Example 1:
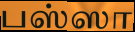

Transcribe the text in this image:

பஸ்ஸா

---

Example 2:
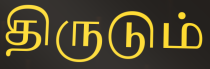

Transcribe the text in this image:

திருடும்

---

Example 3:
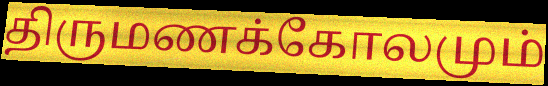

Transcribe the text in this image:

திருமணக்கோலமும்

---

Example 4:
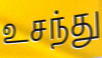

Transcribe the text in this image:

உசந்து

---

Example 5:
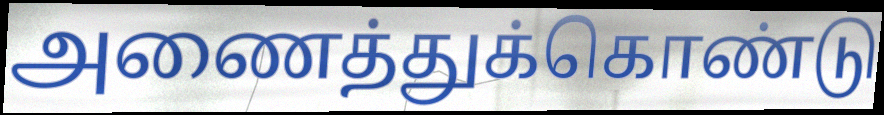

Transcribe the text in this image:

அணைத்துக்கொண்டு